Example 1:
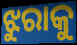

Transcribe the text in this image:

ଝୁରାକୁ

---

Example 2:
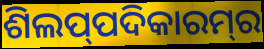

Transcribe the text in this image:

ଶିଲପ୍‍ପଦିକାରମ୍‍ର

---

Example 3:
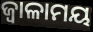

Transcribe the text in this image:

ଜ୍ୱାଳାମୟ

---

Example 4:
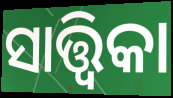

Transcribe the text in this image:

ସାତ୍ତ୍ୱିକା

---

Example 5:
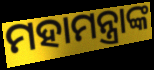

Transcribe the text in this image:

ମହାମନ୍ତ୍ରାଙ୍କ